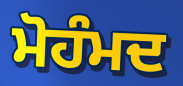
ਮੋਹੰਮਦ